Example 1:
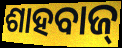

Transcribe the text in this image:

ଶାହବାଜ୍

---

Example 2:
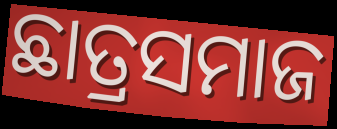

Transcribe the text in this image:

ଛାତ୍ରସମାଜ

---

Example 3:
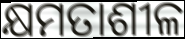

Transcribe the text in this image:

କ୍ଷମତାଶୀଳ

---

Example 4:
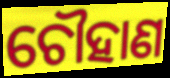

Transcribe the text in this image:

ଚୌହାଣ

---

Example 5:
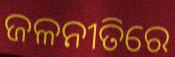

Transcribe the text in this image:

ଜଳନୀତିରେ